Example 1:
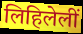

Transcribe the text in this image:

लिहिलेलीं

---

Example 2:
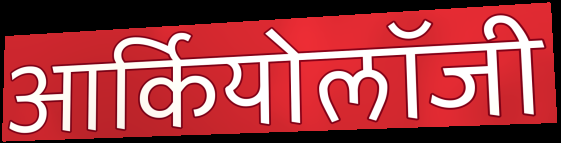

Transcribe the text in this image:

आर्कियोलॉजी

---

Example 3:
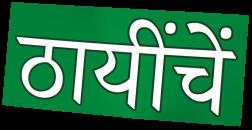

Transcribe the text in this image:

ठायींचें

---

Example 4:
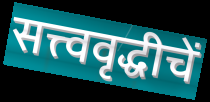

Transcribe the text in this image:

सत्त्ववृद्धीचें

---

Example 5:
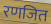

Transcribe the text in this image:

रणजित